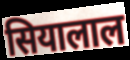
सियालाल